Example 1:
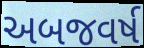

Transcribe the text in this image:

અબજવર્ષ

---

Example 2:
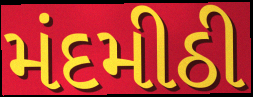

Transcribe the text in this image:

મંદમીઠી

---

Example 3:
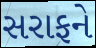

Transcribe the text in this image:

સરાફને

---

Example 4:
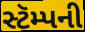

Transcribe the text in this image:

સ્ટૅમ્પની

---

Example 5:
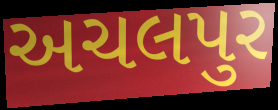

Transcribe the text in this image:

અચલપુર